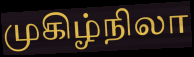
முகிழ்நிலா